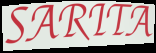
SARITA